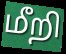
மீறி